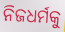
ନିଜଧର୍ମକୁ